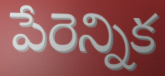
పేరెన్నిక